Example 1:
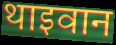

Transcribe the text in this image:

थाइवान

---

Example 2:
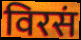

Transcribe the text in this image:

विरसं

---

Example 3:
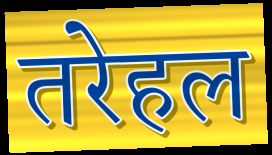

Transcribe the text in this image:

तरेहल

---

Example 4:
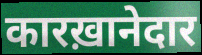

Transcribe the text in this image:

कारख़ानेदार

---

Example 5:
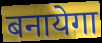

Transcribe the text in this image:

बनायेगा